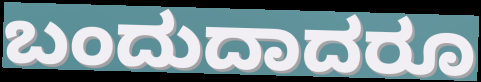
ಬಂದುದಾದರೂ